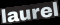
laurel